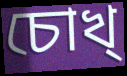
চোখ্